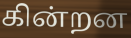
கின்றன